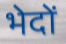
भेदों